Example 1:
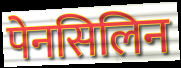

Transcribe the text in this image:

पेनसिलिन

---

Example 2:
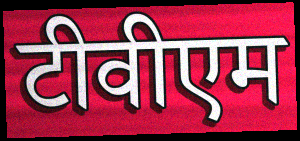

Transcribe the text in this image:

टीवीएम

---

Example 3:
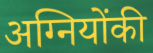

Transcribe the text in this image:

अग्नियोंकी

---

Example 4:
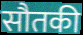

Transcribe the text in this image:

सौतकी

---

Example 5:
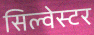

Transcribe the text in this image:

सिल्वेस्टर